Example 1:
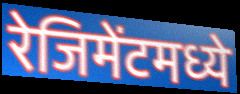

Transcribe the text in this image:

रेजिमेंटमध्ये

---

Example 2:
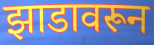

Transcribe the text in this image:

झाडावरून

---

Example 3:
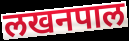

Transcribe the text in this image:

लखनपाल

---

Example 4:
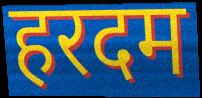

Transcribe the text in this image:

हरदम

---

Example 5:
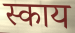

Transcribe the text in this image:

स्काय